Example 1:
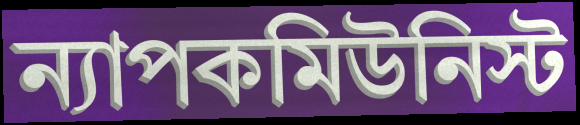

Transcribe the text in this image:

ন্যাপকমিউনিস্ট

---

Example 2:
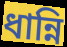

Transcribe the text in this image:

ধান্নি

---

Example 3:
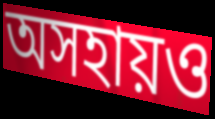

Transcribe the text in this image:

অসহায়ও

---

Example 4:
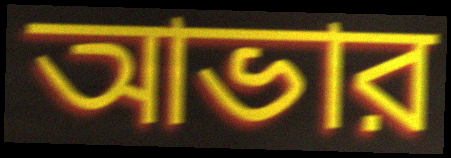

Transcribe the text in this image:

আভার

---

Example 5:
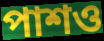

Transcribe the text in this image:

পাশও